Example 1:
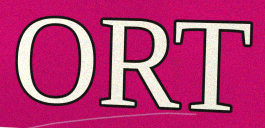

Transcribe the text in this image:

ORT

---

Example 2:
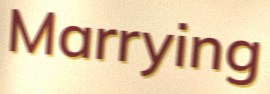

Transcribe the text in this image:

Marrying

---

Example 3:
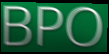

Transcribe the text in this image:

BPO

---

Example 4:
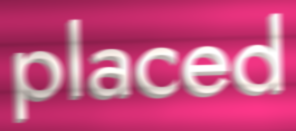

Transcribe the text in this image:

placed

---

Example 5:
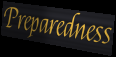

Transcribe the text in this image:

Preparedness